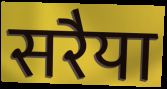
सरैया